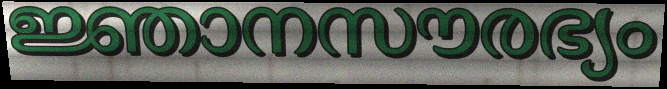
ജ്ഞാനസൗരഭ്യം